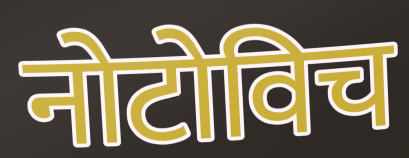
नोटोविच